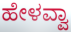
ಹೇಳವ್ವಾ